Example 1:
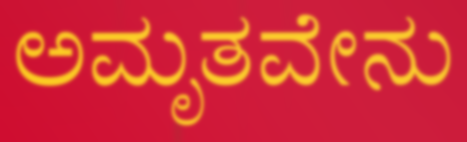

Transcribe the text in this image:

ಅಮೃತವೇನು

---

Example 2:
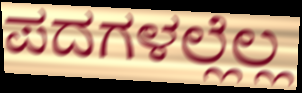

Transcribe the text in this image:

ಪದಗಳಲ್ಲೆಲ್ಲ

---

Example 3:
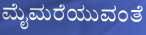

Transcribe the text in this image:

ಮೈಮರೆಯುವಂತೆ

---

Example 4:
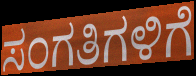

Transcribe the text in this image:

ಸಂಗತಿಗಳಿಗೆ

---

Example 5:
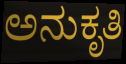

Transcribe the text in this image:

ಅನುಕೃತಿ